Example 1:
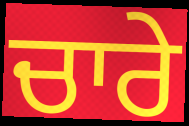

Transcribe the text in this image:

ਚਾਰੇ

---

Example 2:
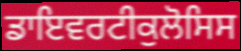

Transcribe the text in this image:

ਡਾਇਵਰਟੀਕੁਲੋਸਿਸ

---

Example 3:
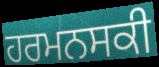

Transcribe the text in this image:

ਹਰਮਨਸਕੀ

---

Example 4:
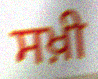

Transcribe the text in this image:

ਸਖ਼ੀ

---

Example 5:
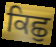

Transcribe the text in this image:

ਕਿਛੁ